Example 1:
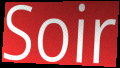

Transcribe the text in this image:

Soir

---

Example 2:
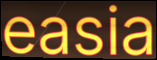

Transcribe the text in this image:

easia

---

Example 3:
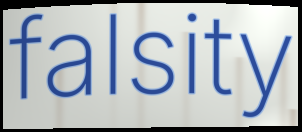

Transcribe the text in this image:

falsity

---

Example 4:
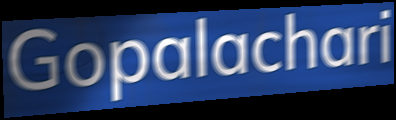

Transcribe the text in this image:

Gopalachari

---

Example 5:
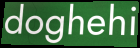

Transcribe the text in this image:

doghehi